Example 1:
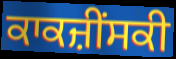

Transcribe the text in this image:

ਕਾਕਜ਼ੀੰਸਕੀ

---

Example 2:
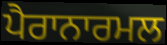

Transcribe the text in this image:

ਪੈਰਾਨਾਰਮਲ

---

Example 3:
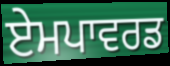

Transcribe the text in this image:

ਏਮਪਾਵਰਡ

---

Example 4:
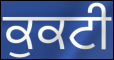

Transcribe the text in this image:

ਕੁਕਟੀ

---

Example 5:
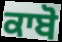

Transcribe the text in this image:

ਕਾਬੋ